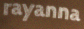
rayanna